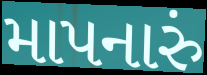
માપનારું